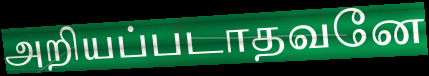
அறியப்படாதவனே